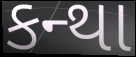
કન્થા